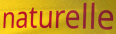
naturelle